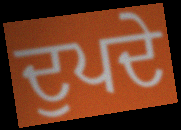
ਦੁਪਦੇ